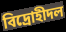
বিদ্রোহীদল